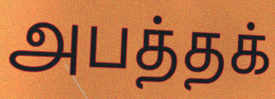
அபத்தக்